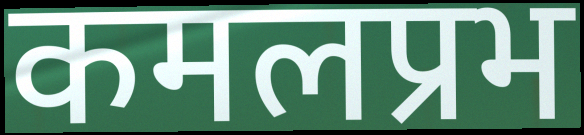
कमलप्रभ